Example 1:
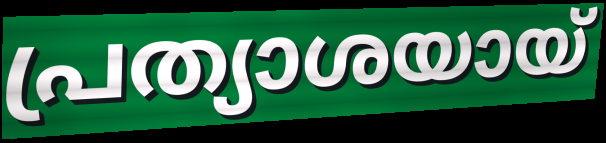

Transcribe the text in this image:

പ്രത്യാശയായ്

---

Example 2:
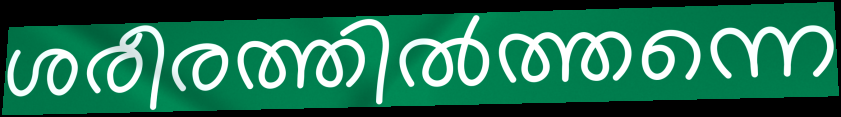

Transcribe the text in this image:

ശരീരത്തിൽത്തന്നെ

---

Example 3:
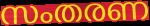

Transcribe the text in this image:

സംതരണ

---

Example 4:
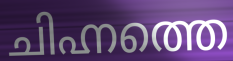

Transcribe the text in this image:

ചിഹ്നത്തെ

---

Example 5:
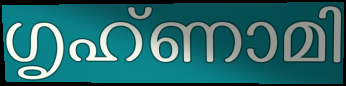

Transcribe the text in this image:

ഗൃഹ്ണാമി